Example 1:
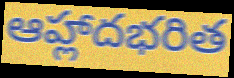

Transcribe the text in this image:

ఆహ్లాదభరిత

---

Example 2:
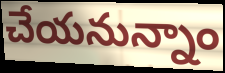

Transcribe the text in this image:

చేయనున్నాం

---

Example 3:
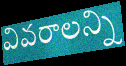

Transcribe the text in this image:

వివరాలన్ని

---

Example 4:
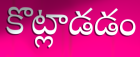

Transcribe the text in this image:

కొట్లాడడం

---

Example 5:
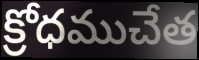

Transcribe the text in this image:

క్రోధముచేత